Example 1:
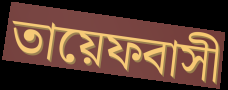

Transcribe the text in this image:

তায়েফবাসী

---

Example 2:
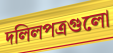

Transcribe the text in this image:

দলিলপত্রগুলো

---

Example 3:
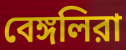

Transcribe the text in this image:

বেঙ্গলিরা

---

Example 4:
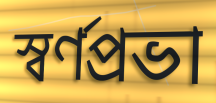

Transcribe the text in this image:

স্বর্ণপ্রভা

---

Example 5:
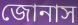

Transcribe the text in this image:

জোনাস